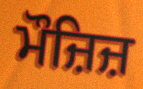
ਮੌਜ਼ਿਜ਼